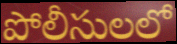
పోలీసులలో